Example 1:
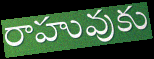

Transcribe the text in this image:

రాహువుకు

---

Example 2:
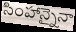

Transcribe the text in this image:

సింహాన్నైనా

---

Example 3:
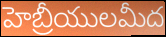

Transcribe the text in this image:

హెబ్రీయులమీద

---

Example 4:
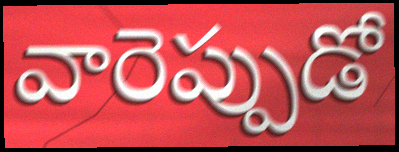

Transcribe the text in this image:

వారెప్పుడో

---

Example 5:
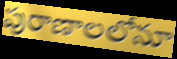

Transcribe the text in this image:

పురాణాలలోనూ